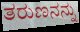
ತರುಣನನ್ನು